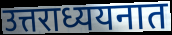
उत्तराध्ययनात